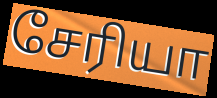
சேரியா